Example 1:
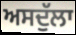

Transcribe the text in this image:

ਅਸਦੁੱਲਾ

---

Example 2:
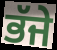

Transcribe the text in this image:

ਭੱਜੇ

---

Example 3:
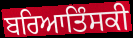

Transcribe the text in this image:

ਬਰਿਆਤਿੰਸਕੀ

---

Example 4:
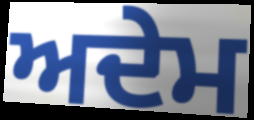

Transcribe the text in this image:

ਅਦੇਮ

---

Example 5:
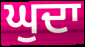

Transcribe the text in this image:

ਘੁਦਾ